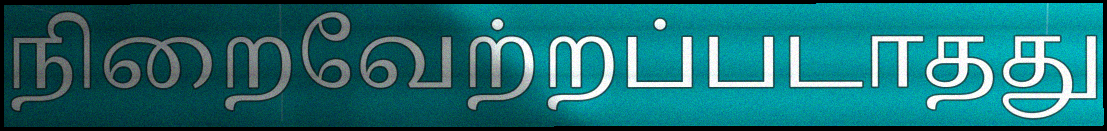
நிறைவேற்றப்படாதது